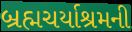
બ્રહ્મચર્યાશ્રમની